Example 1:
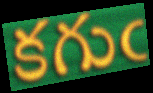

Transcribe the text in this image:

కగుఁ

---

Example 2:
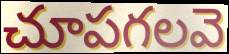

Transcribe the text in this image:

చూపగలవె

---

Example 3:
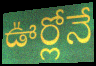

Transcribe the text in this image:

ఊర్లోనే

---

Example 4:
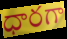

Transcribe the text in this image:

ధారగా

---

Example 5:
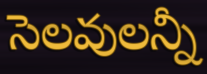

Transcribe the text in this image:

సెలవులన్నీ